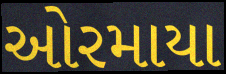
ઓરમાયા